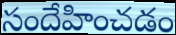
సందేహించడం